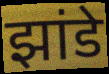
झांडे